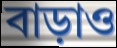
বাড়াও